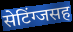
सेटिंग्जसह